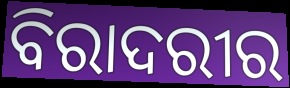
ବିରାଦରୀର